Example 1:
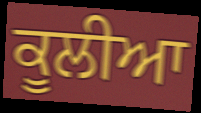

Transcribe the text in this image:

ਕੂਲੀਆ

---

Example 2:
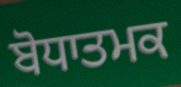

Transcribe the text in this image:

ਬੋਧਾਤਮਕ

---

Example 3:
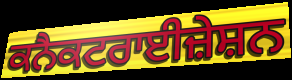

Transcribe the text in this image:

ਕਨੈਕਟਰਾਈਜ਼ੇਸ਼ਨ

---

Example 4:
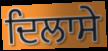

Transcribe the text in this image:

ਦਿਲਾਸੇ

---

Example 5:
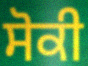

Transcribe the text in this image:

ਸੋਕੀ